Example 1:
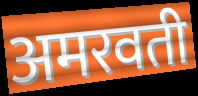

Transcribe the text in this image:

अमरवती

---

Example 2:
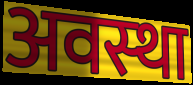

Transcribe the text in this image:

अवस्‍था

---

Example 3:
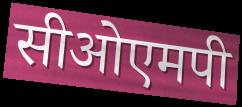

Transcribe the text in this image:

सीओएमपी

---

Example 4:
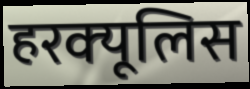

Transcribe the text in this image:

हरक्यूलिस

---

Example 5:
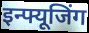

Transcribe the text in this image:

इन्फ्यूजिंग